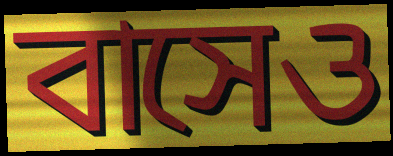
বাসেও